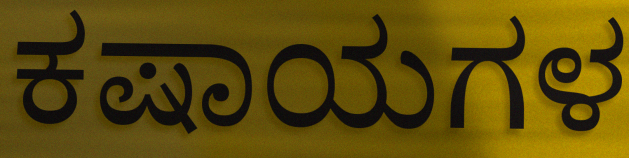
ಕಷಾಯಗಳ